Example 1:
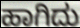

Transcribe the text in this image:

ಹಾಗಿದು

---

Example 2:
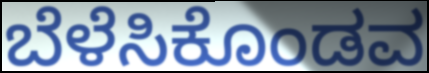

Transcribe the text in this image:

ಬೆಳೆಸಿಕೊಂಡವ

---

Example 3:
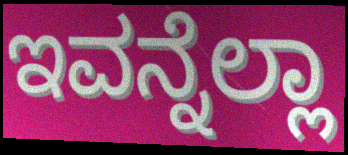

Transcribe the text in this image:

ಇವನ್ನೆಲ್ಲಾ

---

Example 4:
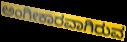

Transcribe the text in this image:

ಅಂಗೀಕಾರವಾಗಿರುವ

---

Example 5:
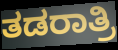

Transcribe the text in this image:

ತಡರಾತ್ರಿ